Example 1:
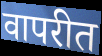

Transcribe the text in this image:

वापरीत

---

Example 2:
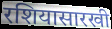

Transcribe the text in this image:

रशियासारखी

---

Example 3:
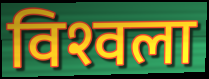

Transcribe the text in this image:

विश्वला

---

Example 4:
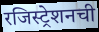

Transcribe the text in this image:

रजिस्ट्रेशनची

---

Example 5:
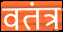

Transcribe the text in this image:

वतंत्र